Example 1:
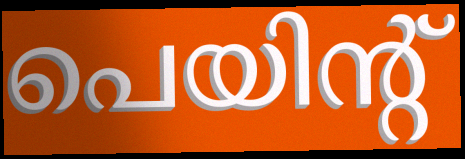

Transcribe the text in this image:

പെയിന്റ്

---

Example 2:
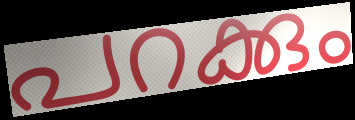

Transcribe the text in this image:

പറക്കും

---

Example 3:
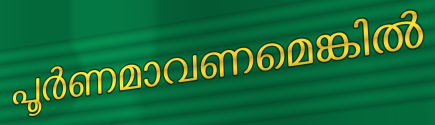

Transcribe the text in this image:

പൂർണമാവണമെങ്കിൽ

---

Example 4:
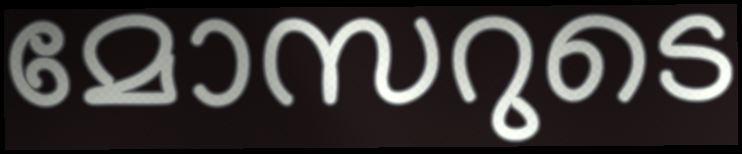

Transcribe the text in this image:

മോസറുടെ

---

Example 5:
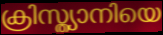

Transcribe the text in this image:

ക്രിസ്ത്യാനിയെ